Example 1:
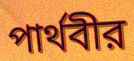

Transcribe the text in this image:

পার্থবীর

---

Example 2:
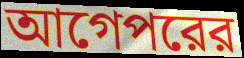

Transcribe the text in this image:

আগেপরের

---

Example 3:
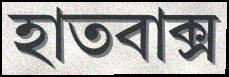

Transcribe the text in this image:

হাতবাক্স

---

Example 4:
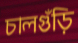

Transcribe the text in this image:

চালগুঁড়ি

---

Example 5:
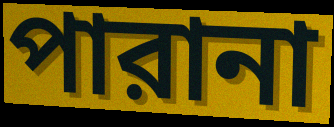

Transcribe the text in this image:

পারানা